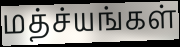
மத்ச்யங்கள்